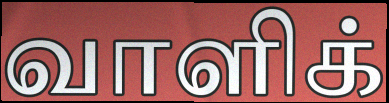
வாளிக்